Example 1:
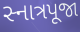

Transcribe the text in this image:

સ્નાત્રપૂજા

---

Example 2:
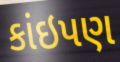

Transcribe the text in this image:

કાંઇપણ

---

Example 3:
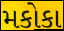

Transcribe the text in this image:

મકોકા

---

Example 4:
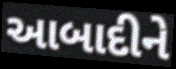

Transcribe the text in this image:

આબાદીને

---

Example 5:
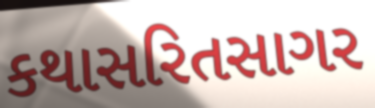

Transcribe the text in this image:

કથાસરિતસાગર